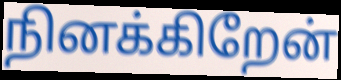
நினக்கிறேன்